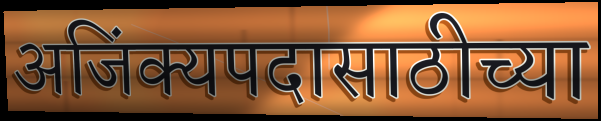
अजिंक्यपदासाठीच्या